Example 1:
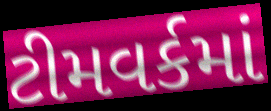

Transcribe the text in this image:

ટીમવર્કમાં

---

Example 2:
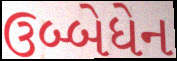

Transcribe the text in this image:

ઉબ્બેધેન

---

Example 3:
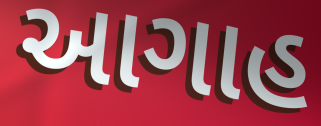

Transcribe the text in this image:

આગાહ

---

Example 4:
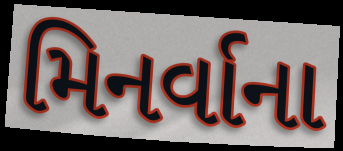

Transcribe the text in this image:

મિનર્વાના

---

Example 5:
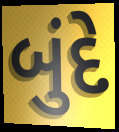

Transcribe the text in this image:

બુંદે